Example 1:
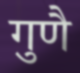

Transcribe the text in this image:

गुणै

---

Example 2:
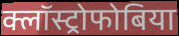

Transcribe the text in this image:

क्लॉस्ट्रोफोबिया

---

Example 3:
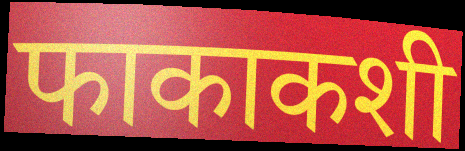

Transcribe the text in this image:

फाकाकशी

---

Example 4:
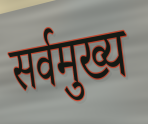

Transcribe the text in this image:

सर्वमुख्य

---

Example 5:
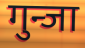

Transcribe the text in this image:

गुन्जा